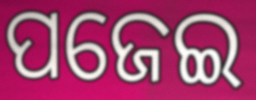
ପଜେଇ